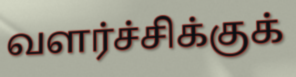
வளர்ச்சிக்குக்